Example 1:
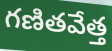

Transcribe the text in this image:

గణితవేత్త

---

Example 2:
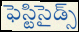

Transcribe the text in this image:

ఫెస్టిసైడ్స్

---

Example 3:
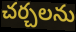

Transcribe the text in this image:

చర్చలను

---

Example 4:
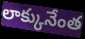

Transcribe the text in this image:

లాక్కునేంత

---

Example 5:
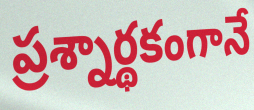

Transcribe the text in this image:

ప్రశ్నార్థకంగానే